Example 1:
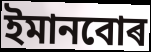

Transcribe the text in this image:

ইমানবোৰ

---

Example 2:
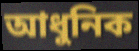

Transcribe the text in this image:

আধুনিক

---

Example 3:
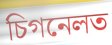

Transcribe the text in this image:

চিগনেলত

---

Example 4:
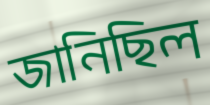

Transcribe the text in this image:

জানিছিল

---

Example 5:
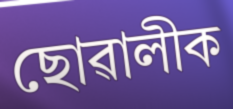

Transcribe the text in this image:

ছোৱালীক